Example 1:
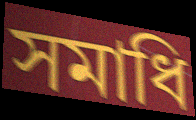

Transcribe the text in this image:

সমাধি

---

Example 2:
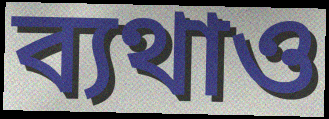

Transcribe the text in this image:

ব্যথাও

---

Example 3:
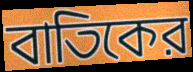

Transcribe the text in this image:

বাতিকের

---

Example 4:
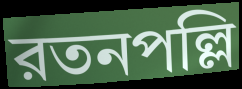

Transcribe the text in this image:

রতনপল্লি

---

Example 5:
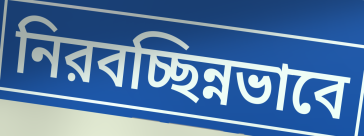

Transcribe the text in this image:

নিরবচ্ছিন্নভাবে